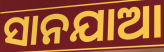
ସାନଯାଆ